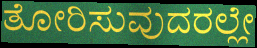
ತೋರಿಸುವುದರಲ್ಲೇ